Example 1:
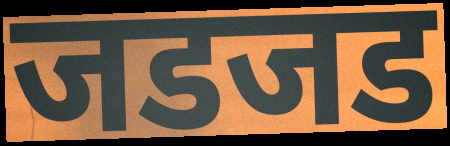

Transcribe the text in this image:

जडजड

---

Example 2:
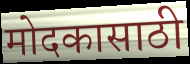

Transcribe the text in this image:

मोदकासाठी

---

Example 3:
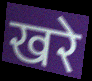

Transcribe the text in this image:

खरे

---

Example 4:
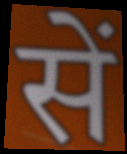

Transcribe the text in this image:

सें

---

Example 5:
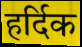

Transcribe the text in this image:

हर्दिक